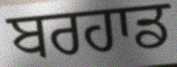
ਬਰਹਾਡ